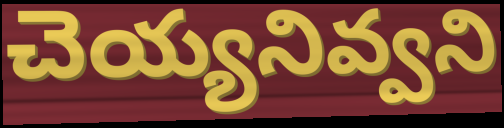
చెయ్యనివ్వని